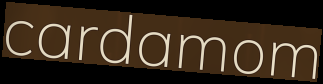
cardamom